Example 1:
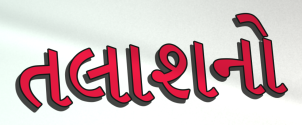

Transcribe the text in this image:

તલાશનો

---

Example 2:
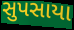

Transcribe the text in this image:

સુપસાયા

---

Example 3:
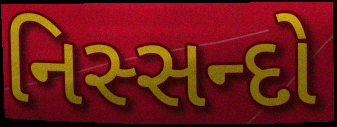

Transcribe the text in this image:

નિસ્સન્દો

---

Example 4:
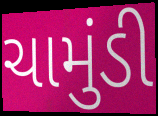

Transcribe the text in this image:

ચામુંડી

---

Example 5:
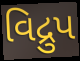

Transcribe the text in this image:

વિદ્રુપ